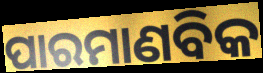
ପାରମାଣବିକ